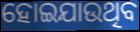
ହୋଇଯାଉଥିବ